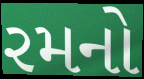
રમનો